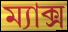
ম্যাক্স